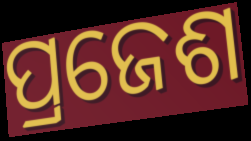
ପ୍ରଜେଶ